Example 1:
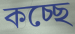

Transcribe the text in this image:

কচ্ছে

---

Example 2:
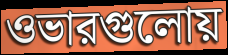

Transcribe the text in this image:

ওভারগুলোয়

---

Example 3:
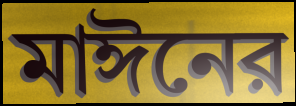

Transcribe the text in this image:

মাঈনের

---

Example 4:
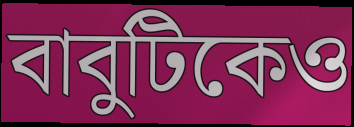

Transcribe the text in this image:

বাবুটিকেও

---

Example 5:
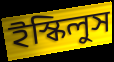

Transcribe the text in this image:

ইস্কিলুস